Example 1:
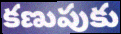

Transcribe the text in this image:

కణుపుకు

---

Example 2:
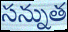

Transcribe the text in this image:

సన్నుత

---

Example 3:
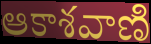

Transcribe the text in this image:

ఆకాశవాణి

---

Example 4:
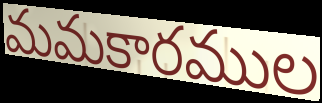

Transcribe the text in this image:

మమకారముల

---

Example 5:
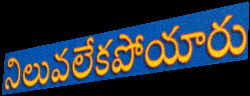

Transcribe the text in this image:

నిలువలేకపోయారు